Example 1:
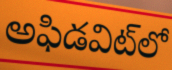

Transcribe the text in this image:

అఫిడవిట్‌లో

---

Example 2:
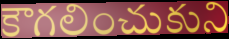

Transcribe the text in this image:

కౌగలించుకుని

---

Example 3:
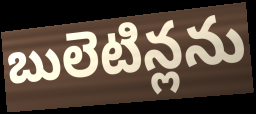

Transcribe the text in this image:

బులెటిన్లను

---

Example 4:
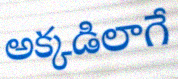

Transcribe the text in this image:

అక్కడిలాగే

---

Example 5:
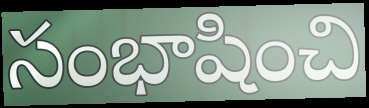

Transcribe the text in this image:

సంభాషించి